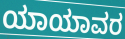
ಯಾಯಾವರ